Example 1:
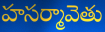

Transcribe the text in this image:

హసర్మావెతు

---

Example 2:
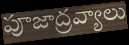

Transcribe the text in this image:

పూజాద్రవ్యాలు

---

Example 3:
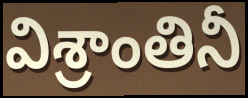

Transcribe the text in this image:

విశ్రాంతినీ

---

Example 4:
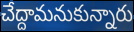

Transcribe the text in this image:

చేద్దామనుకున్నారు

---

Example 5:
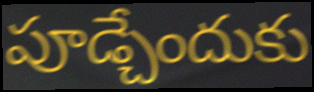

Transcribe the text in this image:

పూడ్చేందుకు